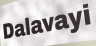
Dalavayi